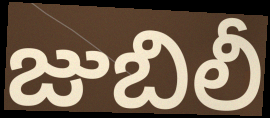
జుబిలీ